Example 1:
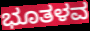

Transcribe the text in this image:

ಭೂತಳವ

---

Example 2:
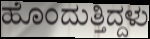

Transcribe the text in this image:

ಹೊಂದುತ್ತಿದ್ದಳು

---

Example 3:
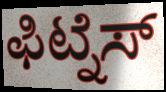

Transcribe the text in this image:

ಫಿಟ್ನೆಸ್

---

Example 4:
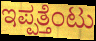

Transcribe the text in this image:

ಇಪ್ಪತ್ತೆಂಟು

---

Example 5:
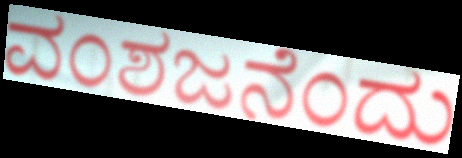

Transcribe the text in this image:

ವಂಶಜನೆಂದು